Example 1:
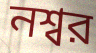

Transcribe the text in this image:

নশ্বর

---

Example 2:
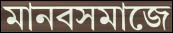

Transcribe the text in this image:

মানবসমাজে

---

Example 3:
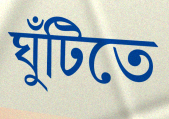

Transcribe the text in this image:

ঘুঁটিতে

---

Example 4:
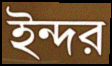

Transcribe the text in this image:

ইন্দর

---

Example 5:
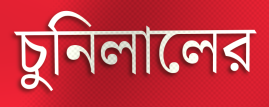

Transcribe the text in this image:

চুনিলালের